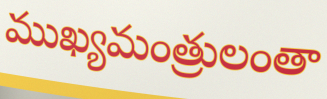
ముఖ్యమంత్రులంతా